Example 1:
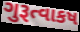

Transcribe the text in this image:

ગુરૂત્વાકષ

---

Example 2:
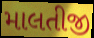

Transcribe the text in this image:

માલતીજી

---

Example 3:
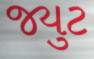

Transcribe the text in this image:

જ્યુટ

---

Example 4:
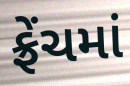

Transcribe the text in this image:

ફ્રેંચમાં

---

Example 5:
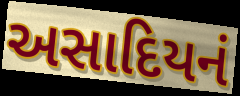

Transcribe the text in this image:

અસાદિયનં